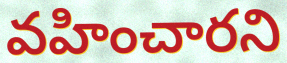
వహించారని